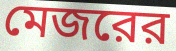
মেজরের